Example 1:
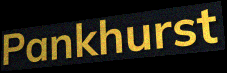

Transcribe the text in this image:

Pankhurst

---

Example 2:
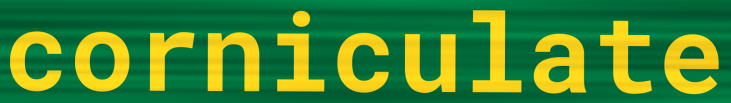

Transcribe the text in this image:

corniculate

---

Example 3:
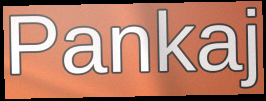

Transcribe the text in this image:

Pankaj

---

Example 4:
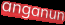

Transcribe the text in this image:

anganun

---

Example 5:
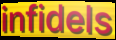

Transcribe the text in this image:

infidels